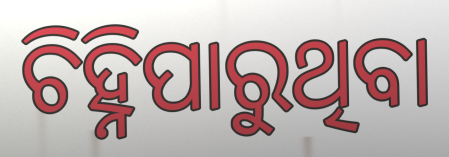
ଚିହ୍ନିପାରୁଥିବା